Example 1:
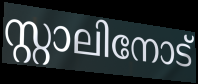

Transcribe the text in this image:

സ്റ്റാലിനോട്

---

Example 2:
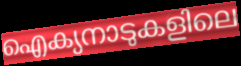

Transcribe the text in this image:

ഐക്യനാടുകളിലെ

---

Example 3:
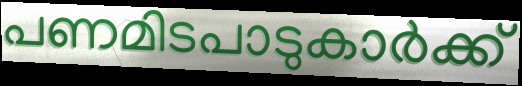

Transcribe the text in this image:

പണമിടപാടുകാർക്ക്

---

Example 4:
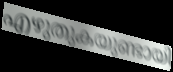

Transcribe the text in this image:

എഴുതുകയുണ്ടായി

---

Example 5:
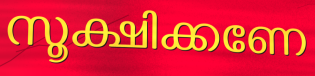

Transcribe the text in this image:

സൂക്ഷിക്കണേ